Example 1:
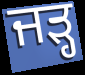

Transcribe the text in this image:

ਜੜ੍ਹ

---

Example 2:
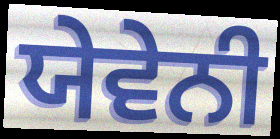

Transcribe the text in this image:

ਯੇਵੇਨੀ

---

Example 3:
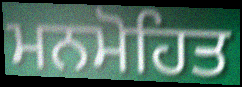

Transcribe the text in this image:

ਮਨਮੋਹਿਤ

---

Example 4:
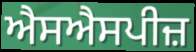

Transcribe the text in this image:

ਐਸਐਸਪੀਜ਼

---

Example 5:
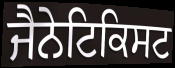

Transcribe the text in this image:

ਜੈਨੇਟਿਕਿਸਟ